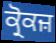
ਕ੍ਰੋਕਜ਼